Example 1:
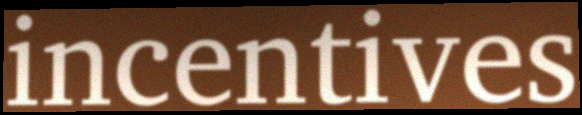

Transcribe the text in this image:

incentives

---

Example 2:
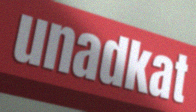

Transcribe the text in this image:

unadkat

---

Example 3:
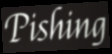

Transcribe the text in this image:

Pishing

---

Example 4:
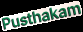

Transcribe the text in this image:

Pusthakam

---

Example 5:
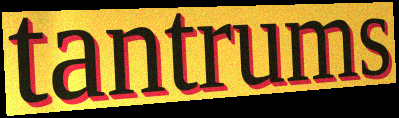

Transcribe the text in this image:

tantrums